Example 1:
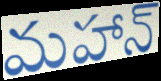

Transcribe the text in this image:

మహాన్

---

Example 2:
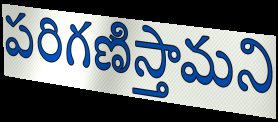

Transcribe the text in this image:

పరిగణిస్తామని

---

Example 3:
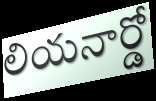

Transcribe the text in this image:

లియనార్డో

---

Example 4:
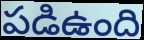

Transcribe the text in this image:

పడిఉంది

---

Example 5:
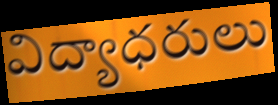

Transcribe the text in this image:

విద్యాధరులు